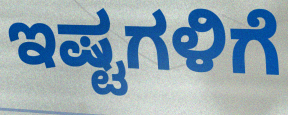
ಇಷ್ಟಗಳಿಗೆ